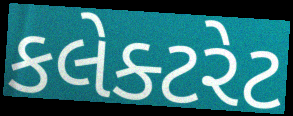
કલેક્ટરેટ